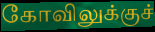
கோவிலுக்குச்